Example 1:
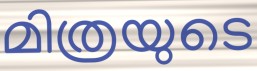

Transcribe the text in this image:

മിത്രയുടെ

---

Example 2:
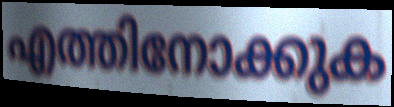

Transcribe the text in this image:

എത്തിനോക്കുക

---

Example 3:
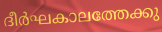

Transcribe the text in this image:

ദീർഘകാലത്തേക്കു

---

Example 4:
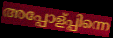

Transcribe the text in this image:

അപ്പോള്പ്പിന്നെ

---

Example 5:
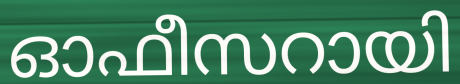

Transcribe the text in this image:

ഓഫീസറായി